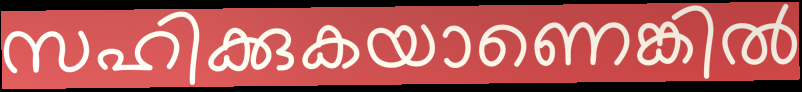
സഹിക്കുകയാണെങ്കിൽ